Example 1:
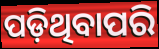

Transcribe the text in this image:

ପଡ଼ିଥିବାପରି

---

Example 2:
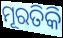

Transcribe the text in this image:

ମୂରତିକି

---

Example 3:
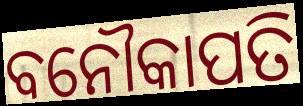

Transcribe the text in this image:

ବନୌକାପତି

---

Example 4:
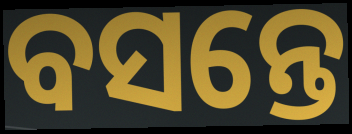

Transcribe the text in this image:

ବସନ୍ତେ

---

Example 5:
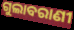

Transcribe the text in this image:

ଗୁଲାବରାଣୀ